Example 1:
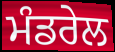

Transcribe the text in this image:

ਮੰਡਰੇਲ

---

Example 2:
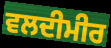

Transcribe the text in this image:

ਵਲਦੀਮੀਰ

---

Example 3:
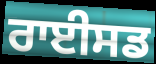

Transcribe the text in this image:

ਰਾਈਸਡ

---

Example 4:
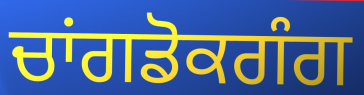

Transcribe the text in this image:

ਚਾਂਗਡੋਕਗੰਗ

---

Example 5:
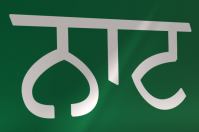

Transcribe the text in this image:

ਨਾਟ